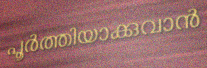
പൂർത്തിയാക്കുവാൻ